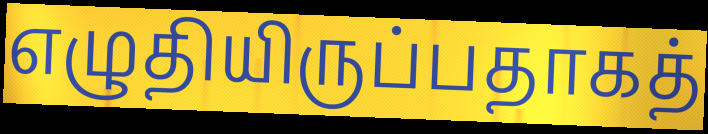
எழுதியிருப்பதாகத்